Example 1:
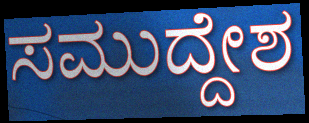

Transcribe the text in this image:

ಸಮುದ್ದೇಶ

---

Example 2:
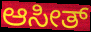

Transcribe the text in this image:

ಆಸೀತ್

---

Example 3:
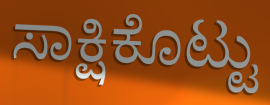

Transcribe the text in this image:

ಸಾಕ್ಷಿಕೊಟ್ಟು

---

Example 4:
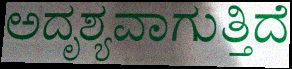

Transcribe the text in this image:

ಅದೃಶ್ಯವಾಗುತ್ತಿದೆ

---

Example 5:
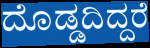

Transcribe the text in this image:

ದೊಡ್ಡದಿದ್ದರೆ